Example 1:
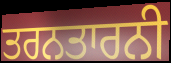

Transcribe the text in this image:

ਤਰਨਤਾਰਨੀ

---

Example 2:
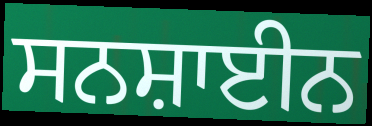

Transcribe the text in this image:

ਸਨਸ਼ਾਈਨ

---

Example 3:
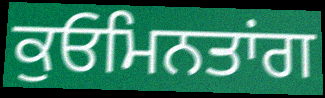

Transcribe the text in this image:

ਕੁਓਮਿਨਤਾਂਗ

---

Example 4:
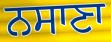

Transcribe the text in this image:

ਨਸਾਣਾ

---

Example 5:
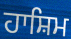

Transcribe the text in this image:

ਹਾਸ਼ਿਮ